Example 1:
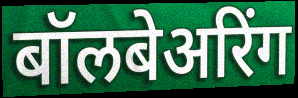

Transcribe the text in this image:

बॉलबेअरिंग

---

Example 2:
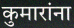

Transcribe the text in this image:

कुमारांना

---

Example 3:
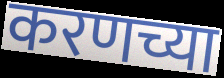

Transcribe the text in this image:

करणच्या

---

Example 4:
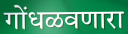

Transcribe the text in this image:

गोंधळवणारा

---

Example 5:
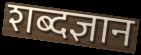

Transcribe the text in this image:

शब्दज्ञान